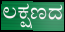
ಲಕ್ಷಣದ